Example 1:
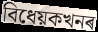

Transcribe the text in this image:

বিধেয়কখনৰ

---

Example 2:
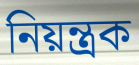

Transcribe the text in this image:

নিয়ন্ত্ৰক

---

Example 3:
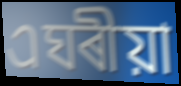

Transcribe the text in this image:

এঘৰীয়া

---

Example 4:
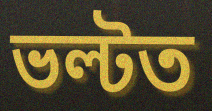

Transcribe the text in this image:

ভল্টত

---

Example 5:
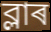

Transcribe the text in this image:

ব্লাৰ